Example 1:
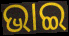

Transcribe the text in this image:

ଭାଇ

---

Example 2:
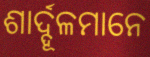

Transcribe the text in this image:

ଶାର୍ଦ୍ଦୂଳମାନେ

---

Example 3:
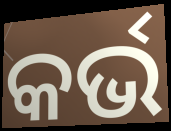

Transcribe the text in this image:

କର୍ଭ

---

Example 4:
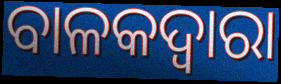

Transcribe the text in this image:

ବାଳକଦ୍ୱାରା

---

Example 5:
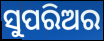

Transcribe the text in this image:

ସୁପରିଅର